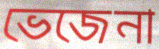
ভেজেনা